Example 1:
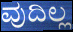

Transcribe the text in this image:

ವುದಿಲ್ಲ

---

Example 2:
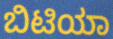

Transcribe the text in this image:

ಬಿಟಿಯಾ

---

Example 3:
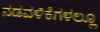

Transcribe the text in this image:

ನಡವಳಿಕೆಗಳಲ್ಲೂ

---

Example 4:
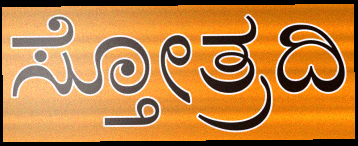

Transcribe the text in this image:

ಸ್ತೋತ್ರದಿ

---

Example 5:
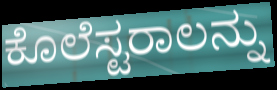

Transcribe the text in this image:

ಕೊಲೆಸ್ಟರಾಲನ್ನು